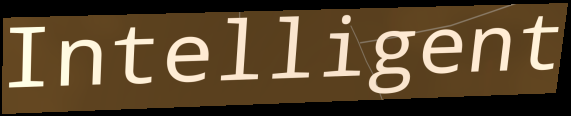
Intelligent